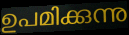
ഉപമിക്കുന്നു